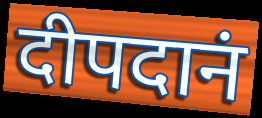
दीपदानं